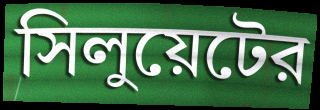
সিলুয়েটের